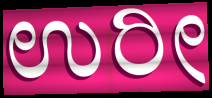
ಉರೀ